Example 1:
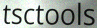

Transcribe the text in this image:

tsctools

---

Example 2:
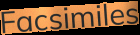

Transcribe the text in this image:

Facsimiles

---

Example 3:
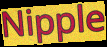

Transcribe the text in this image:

Nipple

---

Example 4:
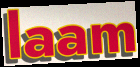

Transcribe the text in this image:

laam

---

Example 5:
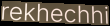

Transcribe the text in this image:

rekhechhi